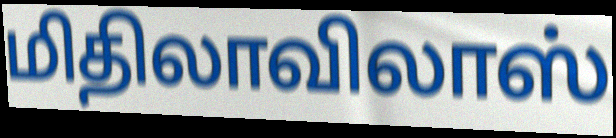
மிதிலாவிலாஸ்